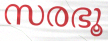
സരഭൂ